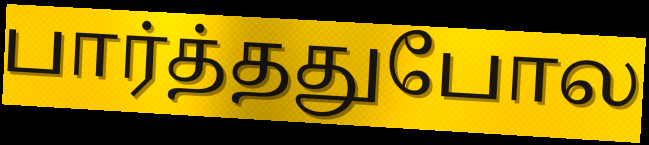
பார்த்ததுபோல